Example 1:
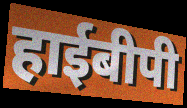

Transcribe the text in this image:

हाईबीपी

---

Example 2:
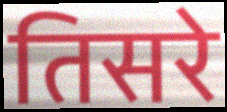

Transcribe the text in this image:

तिसरे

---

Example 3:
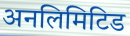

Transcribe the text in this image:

अनलिमिटिड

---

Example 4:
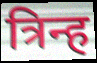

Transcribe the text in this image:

त्रिन्ह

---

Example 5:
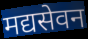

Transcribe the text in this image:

मद्यसेवन